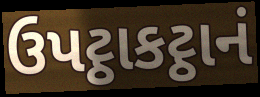
ઉપટ્ઠાકટ્ઠાનં